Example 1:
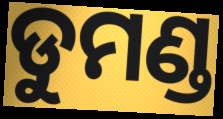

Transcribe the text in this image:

ଡୁମଣ୍ଡ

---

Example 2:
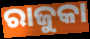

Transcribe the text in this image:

ରାଜୁକା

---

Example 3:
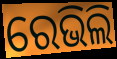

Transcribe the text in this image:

ରେଭିଲି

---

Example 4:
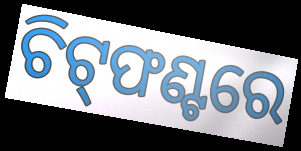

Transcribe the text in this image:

ଚିଟ୍‌ଫଣ୍ଟରେ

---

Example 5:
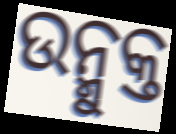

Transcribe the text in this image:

ଉନ୍ମୁକ୍ତ